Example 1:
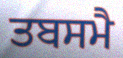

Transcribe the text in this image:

ਤਬਸਮੈ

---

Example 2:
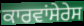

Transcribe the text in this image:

ਕਾਰਵਾਂਸੇਰੇਸ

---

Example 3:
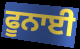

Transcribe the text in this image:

ਫੂਨਾਈ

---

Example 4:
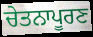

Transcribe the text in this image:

ਚੇਤਨਾਪੂਰਣ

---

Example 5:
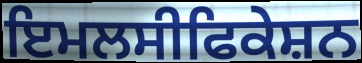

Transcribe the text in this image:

ਇਮਲਸੀਫਿਕੇਸ਼ਨ